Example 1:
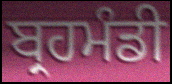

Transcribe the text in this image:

ਬ੍ਰਹਮੰਡੀ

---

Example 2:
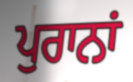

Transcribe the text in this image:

ਪੁਰਾਨਾਂ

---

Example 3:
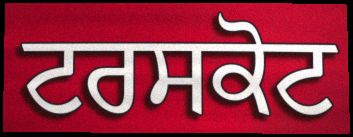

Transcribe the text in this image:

ਟਰਸਕੋਟ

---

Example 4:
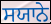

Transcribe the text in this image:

ਸਯਾਨੇ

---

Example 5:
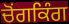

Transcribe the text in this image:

ਚੋਂਗਕਿੰਗ